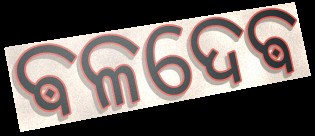
ଵଳଦେଵ